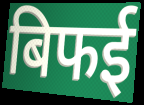
बिफई